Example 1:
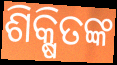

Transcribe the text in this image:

ଶିକ୍ଷିତଙ୍କ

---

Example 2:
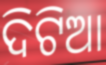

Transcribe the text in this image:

ଦିଟିଆ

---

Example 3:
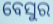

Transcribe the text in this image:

ବେସୁର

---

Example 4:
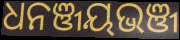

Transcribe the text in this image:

ଧନଞ୍ଜୟଭଞ୍ଜ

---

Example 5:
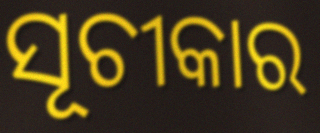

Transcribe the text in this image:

ସୂଚୀକାର